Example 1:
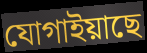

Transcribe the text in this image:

যোগাইয়াছে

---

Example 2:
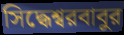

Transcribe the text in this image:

সিদ্ধেশ্বরবাবুর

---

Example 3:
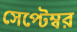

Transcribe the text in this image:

সেপ্টেম্বর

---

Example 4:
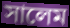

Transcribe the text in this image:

সালেম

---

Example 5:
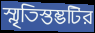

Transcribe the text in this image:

স্মৃতিস্তম্ভটির